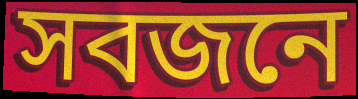
সবজনে